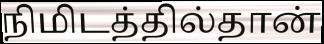
நிமிடத்தில்தான்